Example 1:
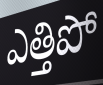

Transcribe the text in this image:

ఎత్తిపో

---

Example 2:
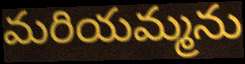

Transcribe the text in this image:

మరియమ్మను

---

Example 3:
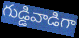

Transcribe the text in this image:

గుడ్డివాడిగా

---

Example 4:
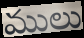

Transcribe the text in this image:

ములు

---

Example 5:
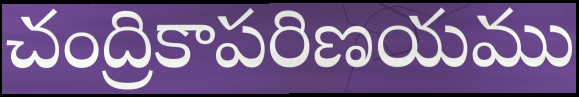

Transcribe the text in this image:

చంద్రికాపరిణయము